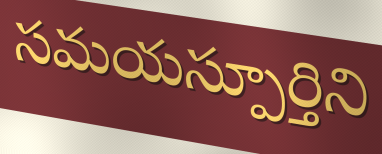
సమయస్పూర్తిని